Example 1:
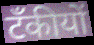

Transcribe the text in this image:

टँकीयों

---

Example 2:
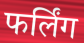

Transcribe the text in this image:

फर्लिंग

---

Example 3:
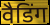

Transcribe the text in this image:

वैडिंग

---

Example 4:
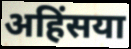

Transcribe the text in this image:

अहिंसया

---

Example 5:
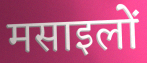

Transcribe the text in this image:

मसाइलों